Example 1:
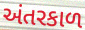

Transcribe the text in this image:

અંતરકાળ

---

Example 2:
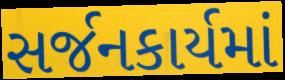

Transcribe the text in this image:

સર્જનકાર્યમાં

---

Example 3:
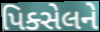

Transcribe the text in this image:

પિક્સેલને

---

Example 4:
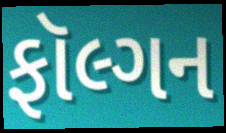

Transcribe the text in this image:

ફૉલ્ગન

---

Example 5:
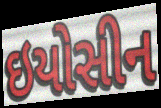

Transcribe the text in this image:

ઇયોસીન